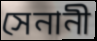
সেনানী